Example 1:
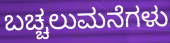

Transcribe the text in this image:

ಬಚ್ಚಲುಮನೆಗಳು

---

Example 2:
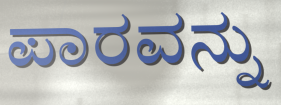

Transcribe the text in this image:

ಪಾರವನ್ನು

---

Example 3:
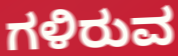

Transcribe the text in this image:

ಗಳಿರುವ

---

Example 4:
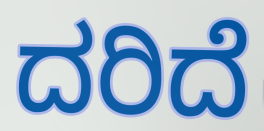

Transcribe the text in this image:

ದರಿದೆ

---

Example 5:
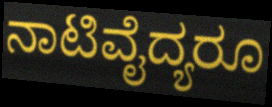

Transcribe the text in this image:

ನಾಟಿವೈದ್ಯರೂ